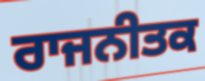
ਰਾਜਨੀਤਕ